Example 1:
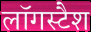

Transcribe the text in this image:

लॉगस्टैश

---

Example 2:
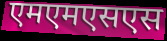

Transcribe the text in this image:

एमएमएसएस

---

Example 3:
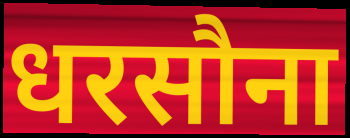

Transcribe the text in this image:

धरसौना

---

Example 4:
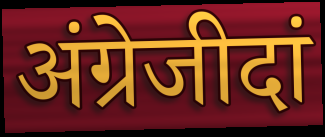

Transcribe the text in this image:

अंग्रेजीदां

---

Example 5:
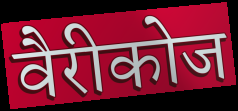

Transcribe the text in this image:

वैरीकोज